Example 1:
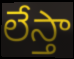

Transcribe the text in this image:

లేస్తా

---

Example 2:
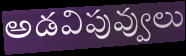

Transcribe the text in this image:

అడవిపువ్వులు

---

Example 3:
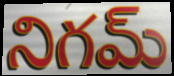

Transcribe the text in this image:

నిగమ్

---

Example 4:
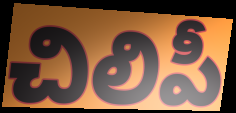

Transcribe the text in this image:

చిలిపీ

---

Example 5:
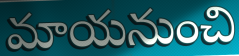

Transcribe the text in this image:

మాయనుంచి